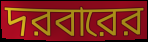
দরবারের